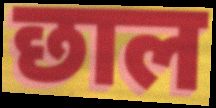
छाल